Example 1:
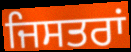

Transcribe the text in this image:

ਜਿਸਤਰਾਂ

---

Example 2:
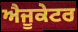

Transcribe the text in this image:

ਐਜੂਕੇਟਰ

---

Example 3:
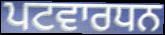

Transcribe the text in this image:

ਪਟਵਾਰਧਨ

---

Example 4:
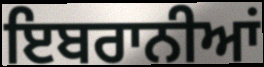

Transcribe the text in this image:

ਇਬਰਾਨੀਆਂ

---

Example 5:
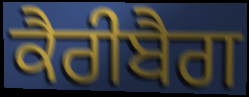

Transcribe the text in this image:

ਕੈਰੀਬੈਗ